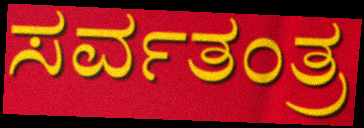
ಸರ್ವತಂತ್ರ